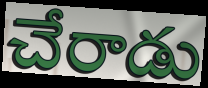
చేరాడు